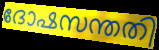
ദോഷസന്തതി